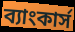
ব্যাংকার্স